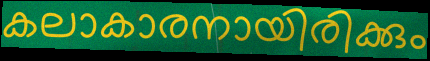
കലാകാരനായിരിക്കും